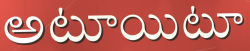
అటూయిటూ